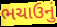
ભચાઉનું